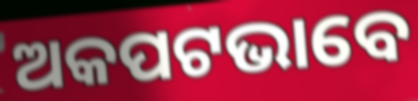
ଅକପଟଭାବେ